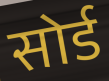
सोर्ड